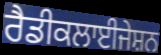
ਰੈਡੀਕਲਾਈਜੇਸ਼ਨ